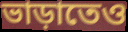
ভাড়াতেও